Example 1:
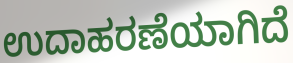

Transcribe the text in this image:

ಉದಾಹರಣೆಯಾಗಿದೆ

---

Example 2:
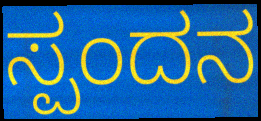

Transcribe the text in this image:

ಸ್ಪಂದನ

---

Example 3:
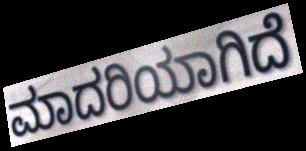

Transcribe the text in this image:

ಮಾದರಿಯಾಗಿದೆ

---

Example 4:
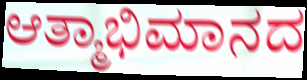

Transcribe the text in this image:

ಆತ್ಮಾಭಿಮಾನದ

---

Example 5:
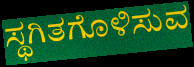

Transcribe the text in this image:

ಸ್ಥಗಿತಗೊಳಿಸುವ